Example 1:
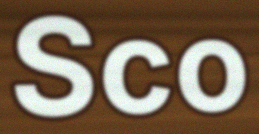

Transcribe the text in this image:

Sco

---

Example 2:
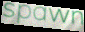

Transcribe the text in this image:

spawn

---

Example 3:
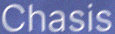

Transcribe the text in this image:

Chasis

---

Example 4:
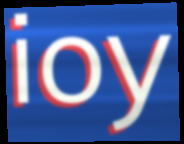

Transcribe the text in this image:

ioy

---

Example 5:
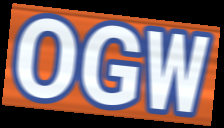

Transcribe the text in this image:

OGW